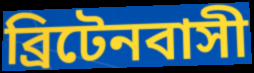
ব্রিটেনবাসী